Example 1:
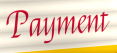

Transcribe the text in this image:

Payment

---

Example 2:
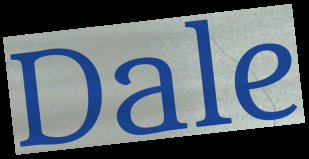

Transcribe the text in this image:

Dale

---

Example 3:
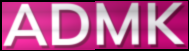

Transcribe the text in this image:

ADMK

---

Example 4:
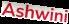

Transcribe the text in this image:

Ashwini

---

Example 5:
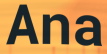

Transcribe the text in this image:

Ana